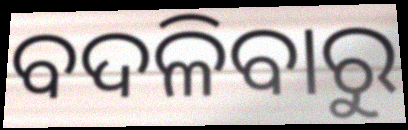
ବଦଳିବାରୁ